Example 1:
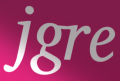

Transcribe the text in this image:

jgre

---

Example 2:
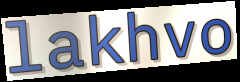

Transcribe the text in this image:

lakhvo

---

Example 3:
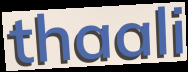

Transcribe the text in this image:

thaali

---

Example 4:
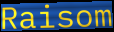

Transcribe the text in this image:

Raisom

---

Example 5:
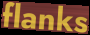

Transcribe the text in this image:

flanks